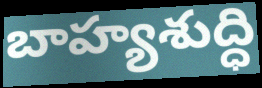
బాహ్యశుద్ధి